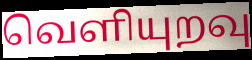
வெளியுறவு